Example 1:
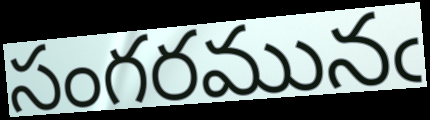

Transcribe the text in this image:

సంగరమునఁ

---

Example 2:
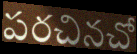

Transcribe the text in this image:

పరచినచో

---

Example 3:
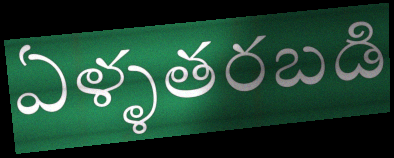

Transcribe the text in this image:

ఏళ్ళతరబడి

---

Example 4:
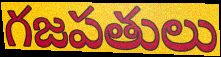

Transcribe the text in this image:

గజపతులు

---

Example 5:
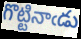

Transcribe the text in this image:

గొట్టినాఁడు